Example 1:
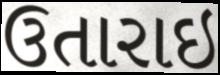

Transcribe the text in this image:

ઉતારાઇ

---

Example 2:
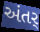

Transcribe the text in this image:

અંતર્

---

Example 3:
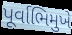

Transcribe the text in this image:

પૂર્વાભિમુખે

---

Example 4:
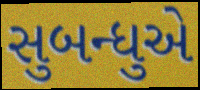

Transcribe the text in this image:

સુબન્ધુએ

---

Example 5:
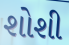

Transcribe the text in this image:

શોશી